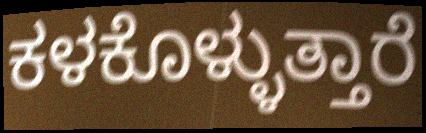
ಕಳಕೊಳ್ಳುತ್ತಾರೆ